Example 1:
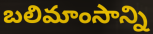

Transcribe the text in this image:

బలిమాంసాన్ని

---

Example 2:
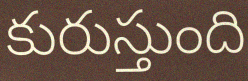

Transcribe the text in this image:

కురుస్తుంది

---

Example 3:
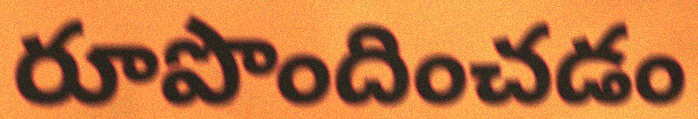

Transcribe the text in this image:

రూపొందించడం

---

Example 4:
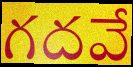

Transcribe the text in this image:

గదవే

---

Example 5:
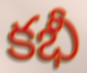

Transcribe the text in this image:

కభీ